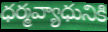
ధర్మవ్యాధునికి